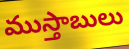
ముస్తాబులు